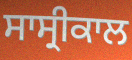
ਸਾਸ੍ਰੀਕਾਲ